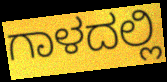
ಗಾಳದಲ್ಲಿ